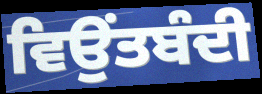
ਵਿਉਂਤਬੰਦੀ